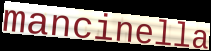
mancinella